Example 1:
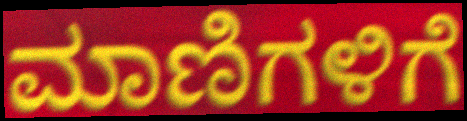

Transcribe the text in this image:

ಮಾಣಿಗಳಿಗೆ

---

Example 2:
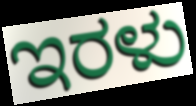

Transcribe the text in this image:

ಇರಳು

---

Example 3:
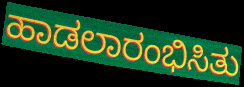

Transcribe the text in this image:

ಹಾಡಲಾರಂಭಿಸಿತು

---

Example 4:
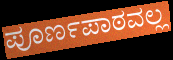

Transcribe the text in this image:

ಪೂರ್ಣಪಾಠವಲ್ಲ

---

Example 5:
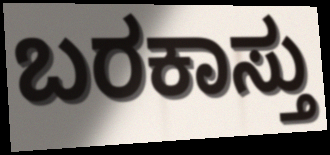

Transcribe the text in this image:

ಬರಕಾಸ್ತು